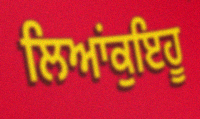
ਲਿਆਂਕੁਇਹੂ